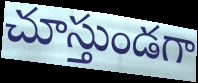
చూస్తుండగా